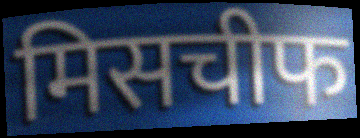
मिसचीफ